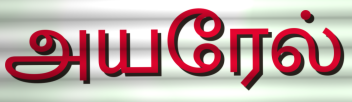
அயரேல்